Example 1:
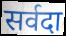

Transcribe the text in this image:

सर्वदा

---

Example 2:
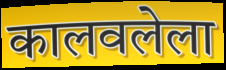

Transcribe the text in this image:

कालवलेला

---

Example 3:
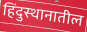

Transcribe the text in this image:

हिंदुस्थानातील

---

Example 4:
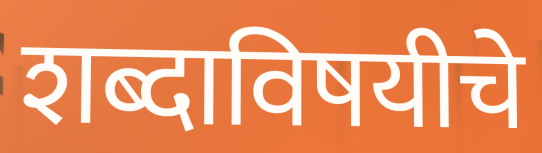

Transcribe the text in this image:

शब्दाविषयीचे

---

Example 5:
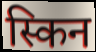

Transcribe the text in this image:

स्किन